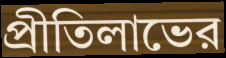
প্রীতিলাভের